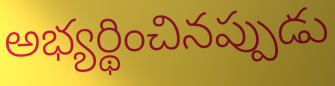
అభ్యర్థించినప్పుడు